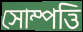
সোম্পত্তি